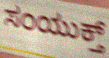
ಸಂಯುಕ್ತ್